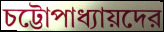
চট্টোপাধ্যায়দের